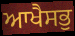
ਆਖੈਸਭੁ